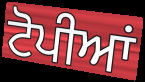
ਟੋਪੀਆਂ